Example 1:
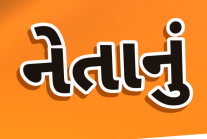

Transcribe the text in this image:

નેતાનું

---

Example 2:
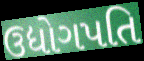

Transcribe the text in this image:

ઉદ્યોગપતિ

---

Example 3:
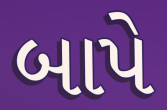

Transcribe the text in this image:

બાપે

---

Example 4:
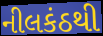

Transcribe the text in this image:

નીલકંઠથી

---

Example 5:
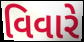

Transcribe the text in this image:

વિવારે